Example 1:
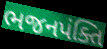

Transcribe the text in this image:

ભજનપંક્તિ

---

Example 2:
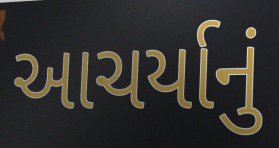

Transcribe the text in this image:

આચર્યાનું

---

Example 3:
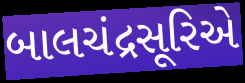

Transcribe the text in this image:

બાલચંદ્રસૂરિએ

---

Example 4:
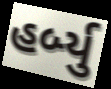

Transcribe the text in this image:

હર્બ્યુ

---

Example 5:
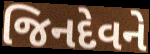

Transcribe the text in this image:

જિનદેવને